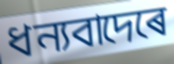
ধন্যবাদেৰে